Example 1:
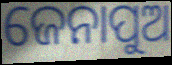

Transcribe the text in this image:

ଜେନାପୁଅ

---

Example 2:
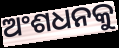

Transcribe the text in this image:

ଅଂଶଧନକୁ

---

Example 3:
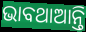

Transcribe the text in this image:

ଭାବଥାଆନ୍ତି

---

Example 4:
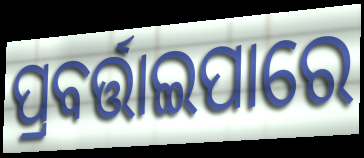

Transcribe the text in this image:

ପ୍ରବର୍ତ୍ତାଇପାରେ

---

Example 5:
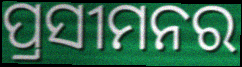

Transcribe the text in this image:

ପ୍ରସୀମନର